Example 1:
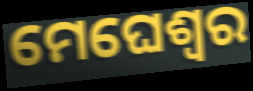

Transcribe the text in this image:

ମେଘେଶ୍ୱର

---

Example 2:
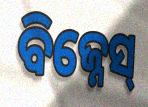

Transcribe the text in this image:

ବିଜ୍ନେସ୍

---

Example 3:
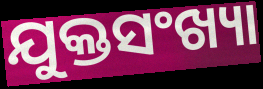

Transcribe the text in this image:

ଯୁକ୍ତସଂଖ୍ୟା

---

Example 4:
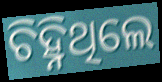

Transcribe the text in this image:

ଚିହ୍ନିଥିଲେ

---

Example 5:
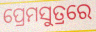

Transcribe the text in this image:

ପ୍ରେମସୁତ୍ରରେ